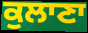
ਕੁਲਾਣਾ